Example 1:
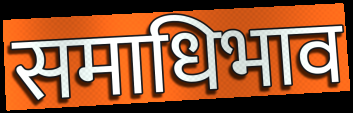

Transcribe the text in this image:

समाधिभाव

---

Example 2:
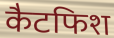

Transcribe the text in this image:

कैटफिश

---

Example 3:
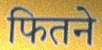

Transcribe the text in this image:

फितने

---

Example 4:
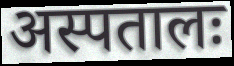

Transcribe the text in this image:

अस्पतालः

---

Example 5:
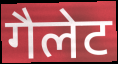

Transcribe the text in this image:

गैलेट